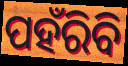
ପହଁରିବି